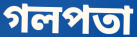
গলপতা